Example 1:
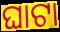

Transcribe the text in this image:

ଘାଟା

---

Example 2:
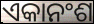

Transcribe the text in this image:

ଏକାନଂଶ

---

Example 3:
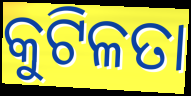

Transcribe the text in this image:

କୁଟିଳତା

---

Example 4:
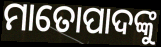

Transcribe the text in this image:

ମାତୋପାଦଙ୍କୁ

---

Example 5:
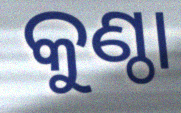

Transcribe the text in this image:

କୁଣ୍ଠା